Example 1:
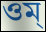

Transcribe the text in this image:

ওম্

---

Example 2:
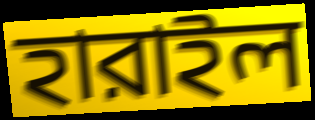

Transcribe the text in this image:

হারাইল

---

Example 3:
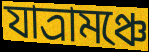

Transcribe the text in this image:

যাত্রামঞ্চে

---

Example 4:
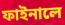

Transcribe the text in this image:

ফাইনালে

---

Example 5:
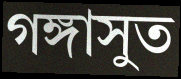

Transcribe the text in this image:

গঙ্গাসুত